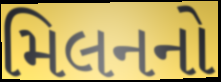
મિલનનો